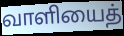
வாளியைத்